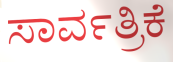
ಸಾರ್ವತ್ರಿಕೆ